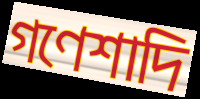
গণেশাদি